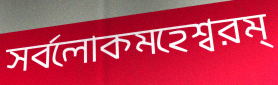
সর্বলোকমহেশ্বরম্